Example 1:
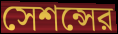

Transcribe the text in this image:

সেশন্সের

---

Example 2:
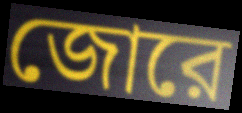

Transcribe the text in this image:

জোরে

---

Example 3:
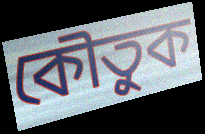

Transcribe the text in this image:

কৌতুক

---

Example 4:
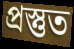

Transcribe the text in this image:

প্রস্তুত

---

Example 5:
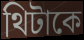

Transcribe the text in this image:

থিটাকে